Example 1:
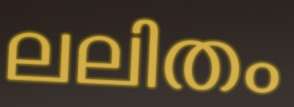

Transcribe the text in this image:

ലലിതം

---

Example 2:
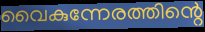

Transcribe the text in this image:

വൈകുന്നേരത്തിന്റെ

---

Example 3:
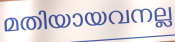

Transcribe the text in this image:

മതിയായവനല്ല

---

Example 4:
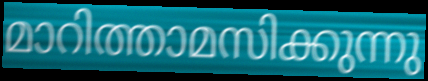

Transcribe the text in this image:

മാറിത്താമസിക്കുന്നു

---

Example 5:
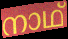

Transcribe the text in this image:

നാഥ്